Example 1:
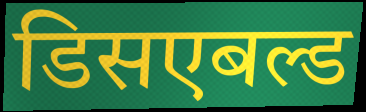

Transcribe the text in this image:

डिसएबल्ड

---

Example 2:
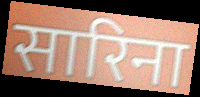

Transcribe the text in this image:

सारिना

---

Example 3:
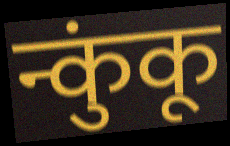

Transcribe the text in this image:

न्कुंकू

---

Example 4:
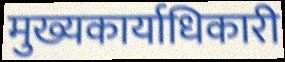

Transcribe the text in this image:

मुख्यकार्याधिकारी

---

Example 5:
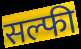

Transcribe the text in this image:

सल्फी